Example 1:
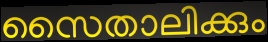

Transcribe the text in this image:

സൈതാലിക്കും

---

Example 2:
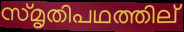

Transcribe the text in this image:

സ്മൃതിപഥത്തില്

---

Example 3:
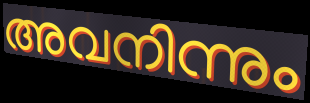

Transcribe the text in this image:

അവനിന്നും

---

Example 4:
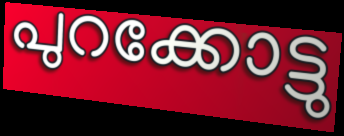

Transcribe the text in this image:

പുറക്കോട്ടു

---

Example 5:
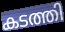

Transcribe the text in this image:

കടത്തി